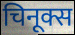
चिनूक्स